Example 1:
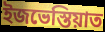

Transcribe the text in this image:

ইজভেস্তিয়াত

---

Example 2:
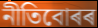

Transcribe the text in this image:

নীতিবোৰৰ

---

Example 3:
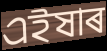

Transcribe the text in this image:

এইষাৰ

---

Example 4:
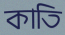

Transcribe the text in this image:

কাতি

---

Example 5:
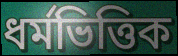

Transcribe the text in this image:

ধৰ্মভিত্তিক